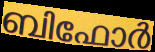
ബിഫോർ